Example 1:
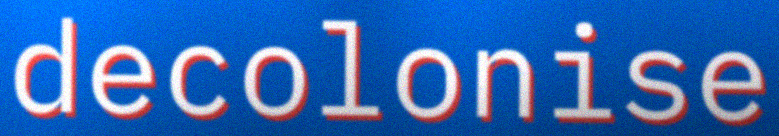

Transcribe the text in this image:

decolonise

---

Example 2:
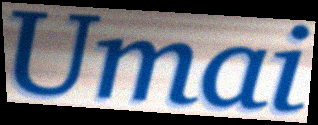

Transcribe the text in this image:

Umai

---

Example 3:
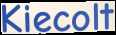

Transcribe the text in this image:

Kiecolt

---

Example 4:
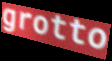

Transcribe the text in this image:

grotto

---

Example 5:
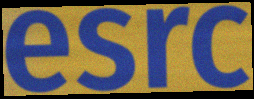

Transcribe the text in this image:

esrc